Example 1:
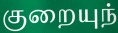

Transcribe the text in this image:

குறையுந்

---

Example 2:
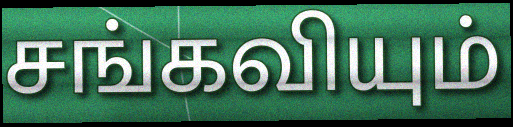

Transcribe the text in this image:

சங்கவியும்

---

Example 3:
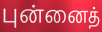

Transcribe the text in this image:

புன்னைத்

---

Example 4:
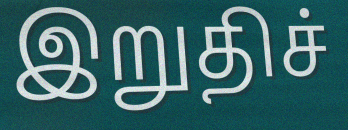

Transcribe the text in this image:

இறுதிச்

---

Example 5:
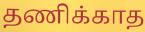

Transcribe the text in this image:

தணிக்காத